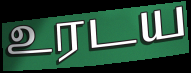
உரடய